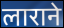
लाराने